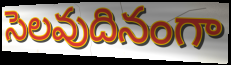
సెలవుదినంగా